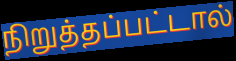
நிறுத்தப்பட்டால்